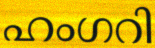
ഹംഗറി